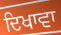
ਦਿਖਾਵਾ